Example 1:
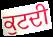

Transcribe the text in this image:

ਕੁਟਦੀ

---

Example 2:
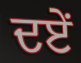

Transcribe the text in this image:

ਦਏਂ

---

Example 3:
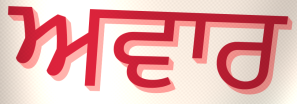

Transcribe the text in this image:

ਅਵਾਰ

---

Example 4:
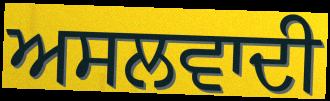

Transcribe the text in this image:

ਅਸਲਵਾਦੀ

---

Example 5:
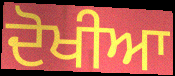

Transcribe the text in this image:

ਦੋਖੀਆ